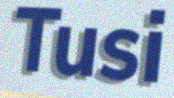
Tusi